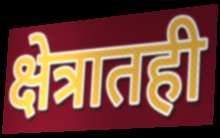
क्षेत्रातही